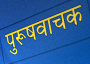
पुरूषवाचक